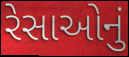
રેસાઓનું